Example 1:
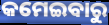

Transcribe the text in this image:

କମେଇବାରୁ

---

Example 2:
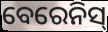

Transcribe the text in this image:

ବେରେନିସ୍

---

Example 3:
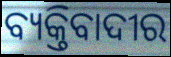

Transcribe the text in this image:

ବ୍ୟକ୍ତିବାଦୀର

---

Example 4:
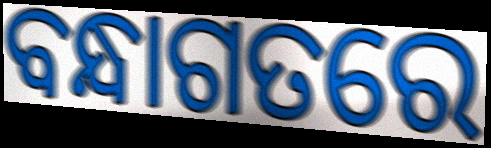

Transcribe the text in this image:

ବନ୍ଧାଗତରେ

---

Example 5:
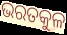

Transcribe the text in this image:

ଭରତକୁଳ